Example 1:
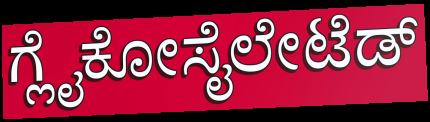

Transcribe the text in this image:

ಗ್ಲೈಕೋಸೈಲೇಟೆಡ್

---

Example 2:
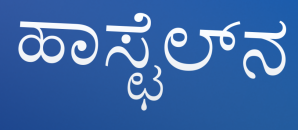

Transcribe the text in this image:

ಹಾಸ್ಟೆಲ್‌ನ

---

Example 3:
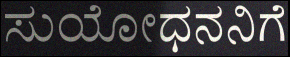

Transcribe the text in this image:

ಸುಯೋಧನನಿಗೆ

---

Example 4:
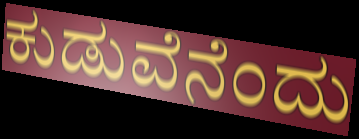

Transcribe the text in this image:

ಕುಡುವೆನೆಂದು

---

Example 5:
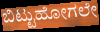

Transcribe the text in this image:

ಬಿಟ್ಟುಹೋಗಲೇ